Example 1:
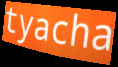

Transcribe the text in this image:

tyacha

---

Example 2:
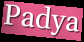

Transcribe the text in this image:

Padya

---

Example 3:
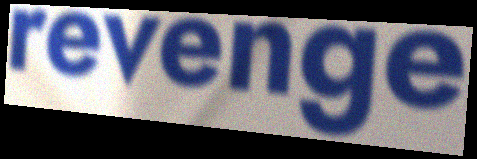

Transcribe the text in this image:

revenge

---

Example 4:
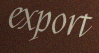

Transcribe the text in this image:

export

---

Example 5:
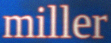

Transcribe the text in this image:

miller